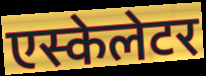
एस्केलेटर